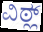
ವಿಠ್ಲ್